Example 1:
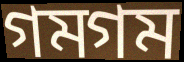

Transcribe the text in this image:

গমগম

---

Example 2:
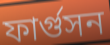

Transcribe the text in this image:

ফার্গুসন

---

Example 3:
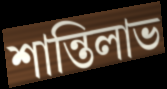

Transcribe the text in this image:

শান্তিলাভ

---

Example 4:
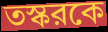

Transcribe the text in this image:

তস্করকে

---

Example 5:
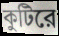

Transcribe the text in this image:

কুটিরে